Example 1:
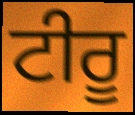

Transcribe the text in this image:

ਟੀਰੂ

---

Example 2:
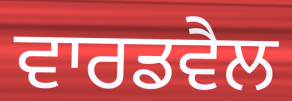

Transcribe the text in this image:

ਵਾਰਡਵੈਲ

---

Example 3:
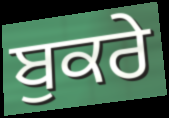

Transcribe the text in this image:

ਬੁਕਰੇ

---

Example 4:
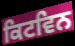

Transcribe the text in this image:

ਕਿਟਵਿਨ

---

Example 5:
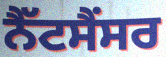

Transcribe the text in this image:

ਨੈੱਟਸੈਂਸਰ